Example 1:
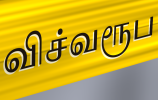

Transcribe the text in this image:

விச்வரூப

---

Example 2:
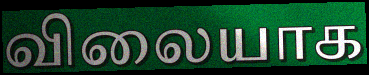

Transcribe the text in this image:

விலையாக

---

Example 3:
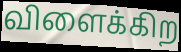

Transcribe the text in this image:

விளைக்கிற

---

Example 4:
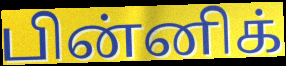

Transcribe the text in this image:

பின்னிக்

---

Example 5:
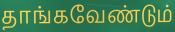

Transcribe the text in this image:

தாங்கவேண்டும்